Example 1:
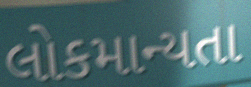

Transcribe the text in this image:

લોકમાન્યતા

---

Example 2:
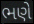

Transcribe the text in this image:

ભણે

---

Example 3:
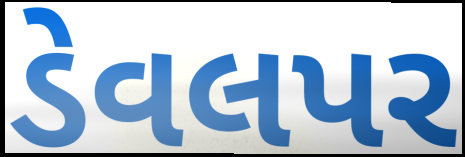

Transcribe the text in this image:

ડેવલપર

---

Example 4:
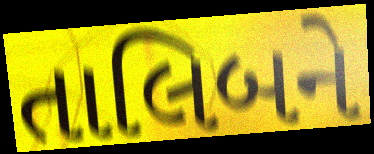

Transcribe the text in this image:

તાલિબને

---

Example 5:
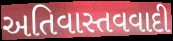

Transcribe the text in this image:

અતિવાસ્તવવાદી